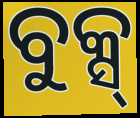
ବୁକ୍ସ୍